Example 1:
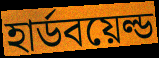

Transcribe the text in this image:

হার্ডবয়েল্ড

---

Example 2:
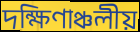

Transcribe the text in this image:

দক্ষিণাঞ্চলীয়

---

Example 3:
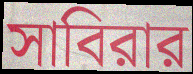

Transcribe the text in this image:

সাবিরার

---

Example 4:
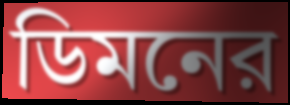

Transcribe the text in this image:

ডিমনের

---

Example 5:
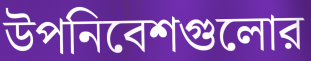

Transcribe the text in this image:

উপনিবেশগুলোর